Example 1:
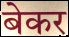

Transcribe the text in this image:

बेकर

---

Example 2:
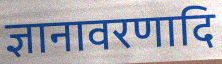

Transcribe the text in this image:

ज्ञानावरणादि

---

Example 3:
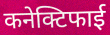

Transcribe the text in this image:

कनेक्टिफाई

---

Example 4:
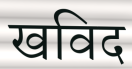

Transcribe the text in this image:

खविद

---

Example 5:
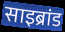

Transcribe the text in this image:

साइब्रांड